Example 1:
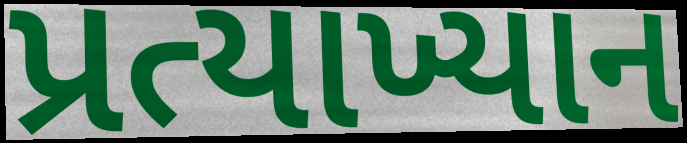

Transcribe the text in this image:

પ્રત્યાખ્યાન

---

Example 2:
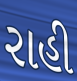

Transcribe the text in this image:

રાહી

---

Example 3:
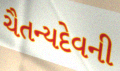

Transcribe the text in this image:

ચૈતન્યદેવની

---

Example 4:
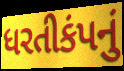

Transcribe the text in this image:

ધરતીકંપનું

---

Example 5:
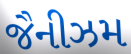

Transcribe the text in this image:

જૈનીઝમ